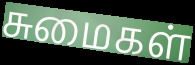
சுமைகள்